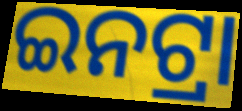
ଇନଟ୍ରା